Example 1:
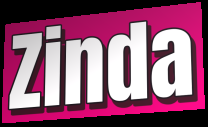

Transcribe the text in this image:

Zinda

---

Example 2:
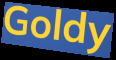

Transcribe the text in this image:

Goldy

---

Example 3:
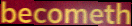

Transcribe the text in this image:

becometh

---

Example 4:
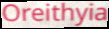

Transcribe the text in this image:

Oreithyia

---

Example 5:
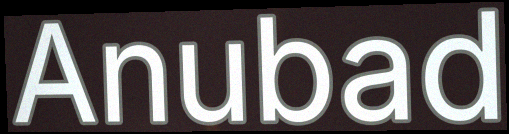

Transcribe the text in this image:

Anubad